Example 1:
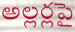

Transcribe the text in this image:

అల్లర్లపై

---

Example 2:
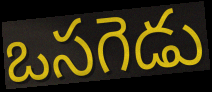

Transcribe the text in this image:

ఒసగెడు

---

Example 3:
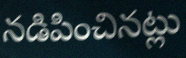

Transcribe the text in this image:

నడిపించినట్లు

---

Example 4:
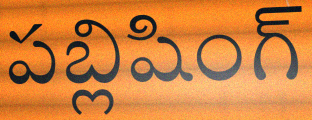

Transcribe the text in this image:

పబ్లిషింగ్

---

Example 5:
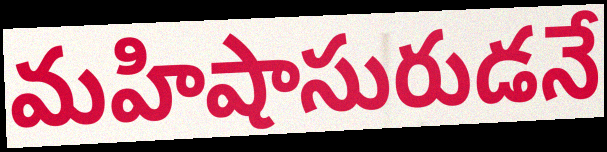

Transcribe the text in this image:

మహిషాసురుడనే